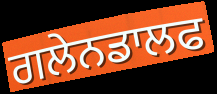
ਗਲੇਨਡਾਲਫ